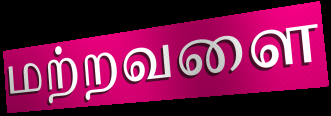
மற்றவளை